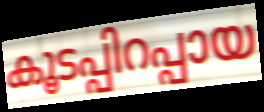
കൂടപ്പിറപ്പായ